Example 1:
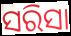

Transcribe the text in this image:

ସରିସା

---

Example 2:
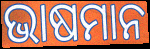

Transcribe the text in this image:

ଭାଷମାନ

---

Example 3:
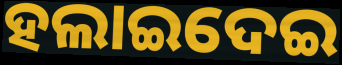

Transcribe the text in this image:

ହଲାଇଦେଇ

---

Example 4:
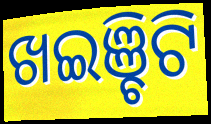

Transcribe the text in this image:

ଖଇଞ୍ଚିଟି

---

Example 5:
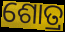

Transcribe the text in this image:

ଶୋତ୍ର